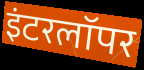
इंटरलॉपर